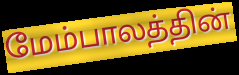
மேம்பாலத்தின்